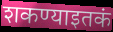
शकण्याइतकं